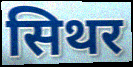
सिथर